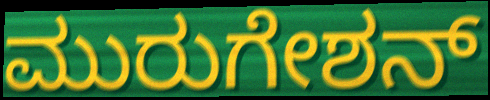
ಮುರುಗೇಶನ್